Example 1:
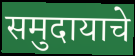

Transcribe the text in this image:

समुदायाचे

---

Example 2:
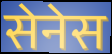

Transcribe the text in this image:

सेनेस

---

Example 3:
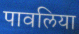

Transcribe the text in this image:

पावलिया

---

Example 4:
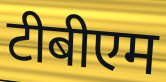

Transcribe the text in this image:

टीबीएम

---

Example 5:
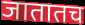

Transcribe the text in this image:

जातातच